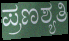
ಪ್ರಣಶ್ಯತಿ